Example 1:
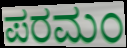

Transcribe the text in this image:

ಪರಮಂ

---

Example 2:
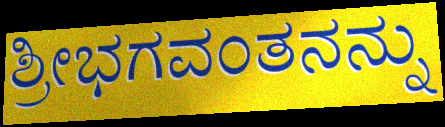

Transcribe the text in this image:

ಶ್ರೀಭಗವಂತನನ್ನು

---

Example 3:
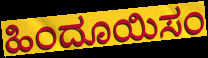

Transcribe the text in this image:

ಹಿಂದೂಯಿಸಂ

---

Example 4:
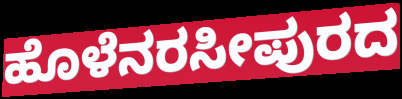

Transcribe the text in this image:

ಹೊಳೆನರಸೀಪುರದ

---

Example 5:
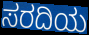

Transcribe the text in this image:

ಸರದಿಯ